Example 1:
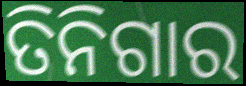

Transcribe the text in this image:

ତିନିଗାର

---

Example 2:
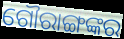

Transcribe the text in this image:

ଗୌରାଙ୍ଗଙ୍କର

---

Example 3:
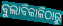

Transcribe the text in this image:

ବୁଲାବିକାଳିଠାରୁ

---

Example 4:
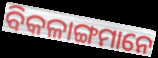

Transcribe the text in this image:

ବିକଳାଙ୍ଗମାନେ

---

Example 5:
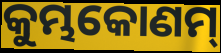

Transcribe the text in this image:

କୁମ୍ଭକୋଣମ୍